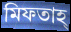
মিফতাহ্